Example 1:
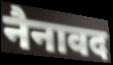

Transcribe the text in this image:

नैनावद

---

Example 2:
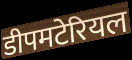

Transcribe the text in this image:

डीपमटेरियल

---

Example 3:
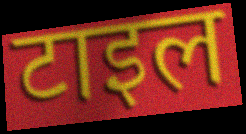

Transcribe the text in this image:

टाइल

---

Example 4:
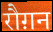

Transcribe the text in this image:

रौग़न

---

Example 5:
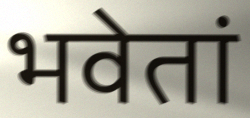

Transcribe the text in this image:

भवेतां